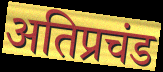
अतिप्रचंड